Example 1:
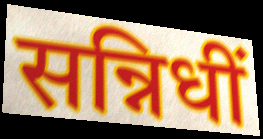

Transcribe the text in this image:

सन्निधीं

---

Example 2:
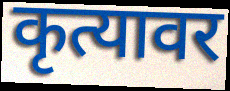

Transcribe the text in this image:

कृत्यावर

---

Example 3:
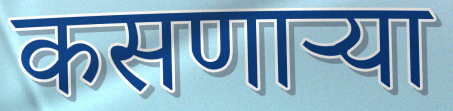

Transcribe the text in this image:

कसणाऱ्या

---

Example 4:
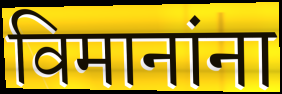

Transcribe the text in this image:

विमानांना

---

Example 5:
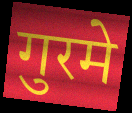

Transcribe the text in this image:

गुरमे